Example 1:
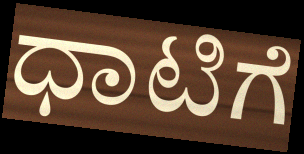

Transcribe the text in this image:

ಧಾಟಿಗೆ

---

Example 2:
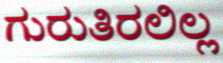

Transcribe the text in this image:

ಗುರುತಿರಲಿಲ್ಲ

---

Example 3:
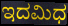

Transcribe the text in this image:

ಇದಮಿಧ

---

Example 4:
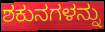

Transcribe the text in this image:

ಶಕುನಗಳನ್ನು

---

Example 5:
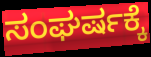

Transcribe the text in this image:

ಸಂಘರ್ಷಕ್ಕೆ